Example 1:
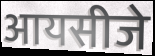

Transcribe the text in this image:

आयसीजे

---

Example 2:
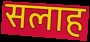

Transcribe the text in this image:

सलाह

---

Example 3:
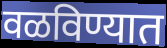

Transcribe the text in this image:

वळविण्यात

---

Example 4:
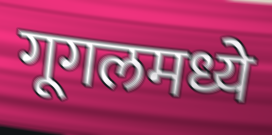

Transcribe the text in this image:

गूगलमध्ये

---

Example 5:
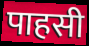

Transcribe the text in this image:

पाहसी